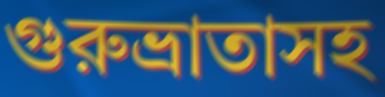
গুরুভ্রাতাসহ